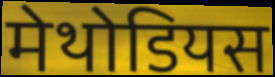
मेथोडियस